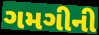
ગમગીની